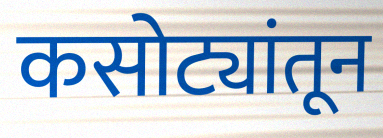
कसोट्यांतून